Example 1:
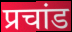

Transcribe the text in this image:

प्रचांड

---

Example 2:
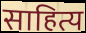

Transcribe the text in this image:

साहित्य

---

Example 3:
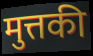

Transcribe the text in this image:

मुत्तकी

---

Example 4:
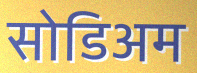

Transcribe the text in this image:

सोडिअम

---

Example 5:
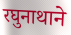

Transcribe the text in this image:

रघुनाथाने